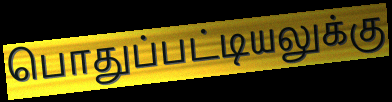
பொதுப்பட்டியலுக்கு